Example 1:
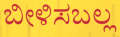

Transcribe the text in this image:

ಬೀಳಿಸಬಲ್ಲ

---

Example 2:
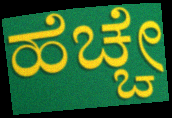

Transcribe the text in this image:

ಹೆಚ್ಚೇ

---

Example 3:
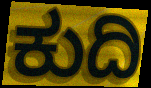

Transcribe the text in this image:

ಕುದಿ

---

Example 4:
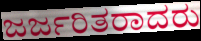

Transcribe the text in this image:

ಜರ್ಜರಿತರಾದರು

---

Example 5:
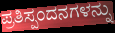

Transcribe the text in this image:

ಪ್ರತಿಸ್ಪಂದನಗಳನ್ನು